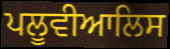
ਪਲੂਵੀਆਲਿਸ